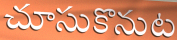
చూసుకొనుట